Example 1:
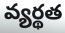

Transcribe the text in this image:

వ్యర్థత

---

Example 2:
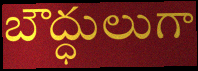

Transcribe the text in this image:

బౌద్ధులుగా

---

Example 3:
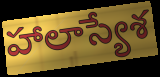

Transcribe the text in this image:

హాలాస్యేశ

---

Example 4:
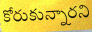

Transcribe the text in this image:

కోరుకున్నారని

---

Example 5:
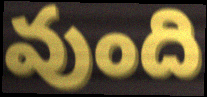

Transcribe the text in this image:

వుంది